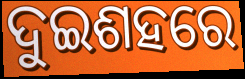
ଦୁଇଶହରେ